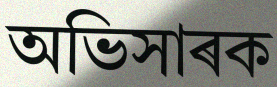
অভিসাৰক